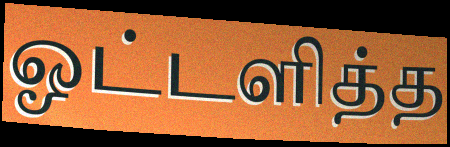
ஓட்டளித்த